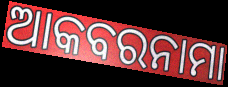
ଆକବରନାମା